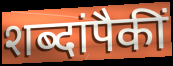
शब्दांपैकीं